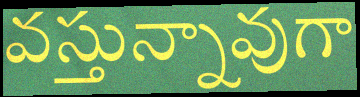
వస్తున్నావుగా